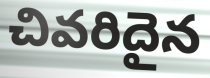
చివరిదైన